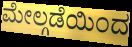
ಮೇಲ್ಗಡೆಯಿಂದ